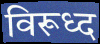
विरूध्द